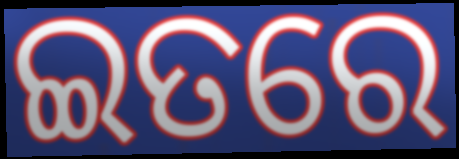
ଇତରେ